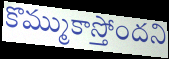
కొమ్ముకాస్తోందని